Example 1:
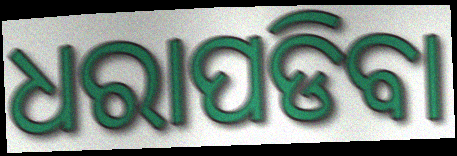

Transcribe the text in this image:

ଧରାପଡିବା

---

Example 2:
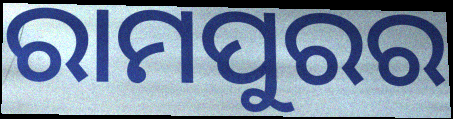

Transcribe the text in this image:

ରାମପୁରର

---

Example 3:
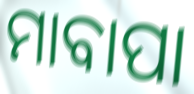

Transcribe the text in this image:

ମାବାପା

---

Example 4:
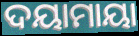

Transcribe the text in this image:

ଦୟାମାୟା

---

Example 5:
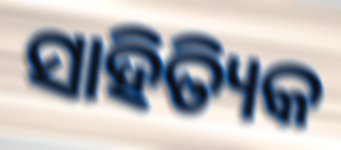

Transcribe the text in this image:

ସାହିତ୍ୟିକ